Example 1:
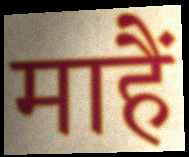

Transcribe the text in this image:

माहैं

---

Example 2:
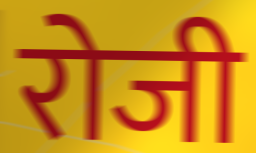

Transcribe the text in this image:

रोजी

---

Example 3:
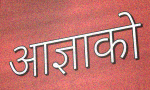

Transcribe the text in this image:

आज्ञाको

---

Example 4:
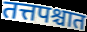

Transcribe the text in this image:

तत्तपश्चात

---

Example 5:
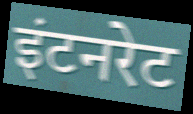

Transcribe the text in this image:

इंटनरेट